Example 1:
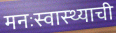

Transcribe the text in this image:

मनःस्वास्थ्याची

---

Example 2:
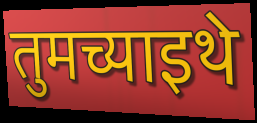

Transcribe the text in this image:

तुमच्याइथे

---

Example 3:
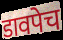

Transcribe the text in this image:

डावपेच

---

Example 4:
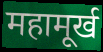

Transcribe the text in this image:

महामूर्ख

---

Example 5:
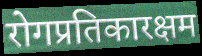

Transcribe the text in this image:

रोगप्रतिकारक्षम